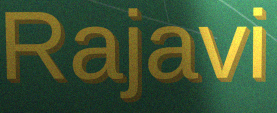
Rajavi